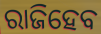
ରାଜିହେବ